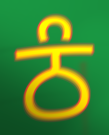
ਠੰ